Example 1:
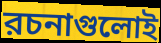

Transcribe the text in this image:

রচনাগুলোই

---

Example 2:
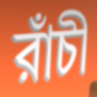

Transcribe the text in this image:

রাঁচী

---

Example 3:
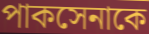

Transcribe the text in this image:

পাকসেনাকে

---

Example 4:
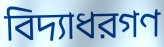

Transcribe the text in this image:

বিদ্যাধরগণ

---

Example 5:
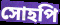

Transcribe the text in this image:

সোহপি